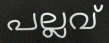
പല്ലവ്